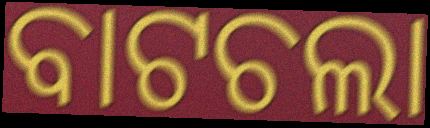
ବାଟଚଲା